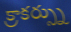
క్రాకర్స్ను